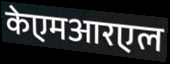
केएमआरएल